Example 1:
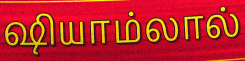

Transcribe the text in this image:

ஷியாம்லால்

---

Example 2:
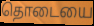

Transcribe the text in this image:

தொடையை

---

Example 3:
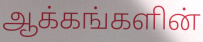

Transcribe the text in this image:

ஆக்கங்களின்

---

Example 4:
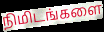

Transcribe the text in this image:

நிமிடங்களை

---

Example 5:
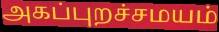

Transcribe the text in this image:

அகப்புறச்சமயம்